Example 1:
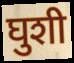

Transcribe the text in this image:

घुशी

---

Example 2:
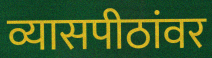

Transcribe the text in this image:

व्यासपीठांवर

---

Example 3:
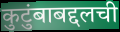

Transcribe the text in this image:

कुटुंबाबद्दलची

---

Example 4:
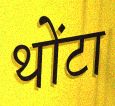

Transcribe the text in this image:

थोंटा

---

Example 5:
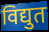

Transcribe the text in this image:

विद्युत